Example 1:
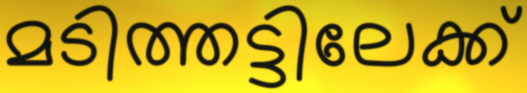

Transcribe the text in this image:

മടിത്തട്ടിലേക്ക്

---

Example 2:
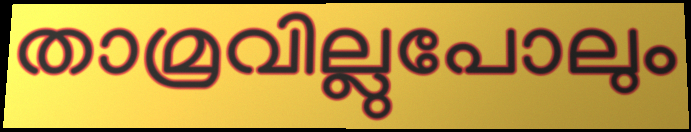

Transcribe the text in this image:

താമ്രവില്ലുപോലും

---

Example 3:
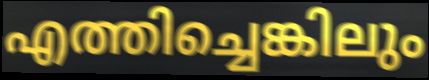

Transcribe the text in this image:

എത്തിച്ചെങ്കിലും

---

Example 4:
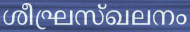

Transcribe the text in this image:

ശീഘ്രസ്ഖലനം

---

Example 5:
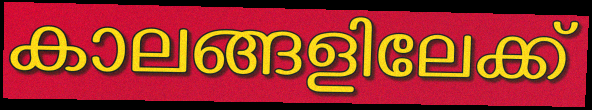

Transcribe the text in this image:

കാലങ്ങളിലേക്ക്